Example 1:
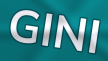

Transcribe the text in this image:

GINI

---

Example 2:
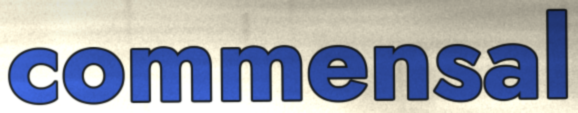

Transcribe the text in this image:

commensal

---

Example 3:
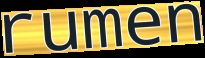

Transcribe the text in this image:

rumen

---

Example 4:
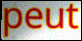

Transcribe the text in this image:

peut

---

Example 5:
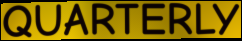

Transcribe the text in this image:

QUARTERLY